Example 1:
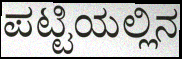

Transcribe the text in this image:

ಪಟ್ಟಿಯಲ್ಲಿನ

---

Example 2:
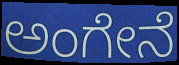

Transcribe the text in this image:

ಅಂಗೇನೆ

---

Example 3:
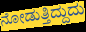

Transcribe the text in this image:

ನೋಡುತ್ತಿದ್ದುದು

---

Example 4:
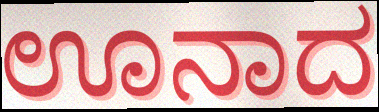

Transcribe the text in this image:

ಊನಾದ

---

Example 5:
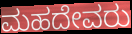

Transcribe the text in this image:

ಮಹದೇವರು